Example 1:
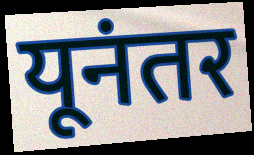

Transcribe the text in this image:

यूनंतर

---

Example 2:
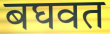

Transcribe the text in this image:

बघवत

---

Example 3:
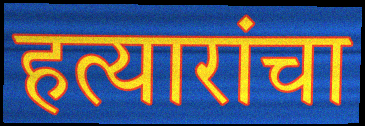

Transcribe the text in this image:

हत्यारांचा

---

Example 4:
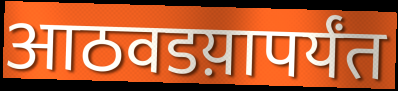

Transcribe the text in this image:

आठवडय़ापर्यंत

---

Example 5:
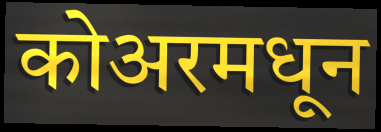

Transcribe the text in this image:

कोअरमधून